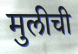
मुलीची